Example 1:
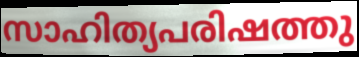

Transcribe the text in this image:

സാഹിത്യപരിഷത്തു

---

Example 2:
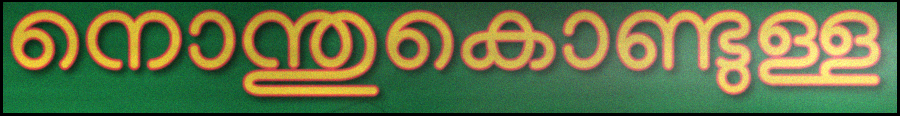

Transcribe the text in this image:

നൊന്തുകൊണ്ടുള്ള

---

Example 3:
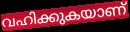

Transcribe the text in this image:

വഹിക്കുകയാണ്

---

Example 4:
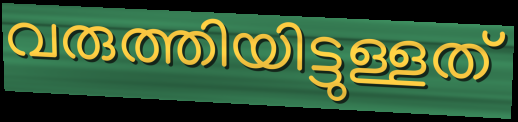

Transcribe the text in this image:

വരുത്തിയിട്ടുള്ളത്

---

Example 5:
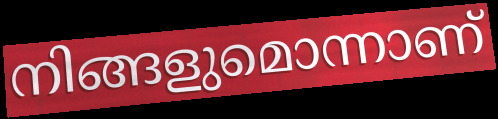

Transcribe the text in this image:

നിങ്ങളുമൊന്നാണ്